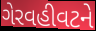
ગેરવહીવટને